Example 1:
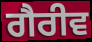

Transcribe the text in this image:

ਗੈਰੀਵ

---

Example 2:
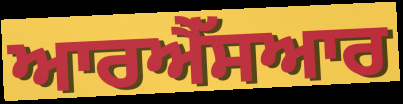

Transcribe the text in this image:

ਆਰਐੱਸਆਰ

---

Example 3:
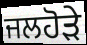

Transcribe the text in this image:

ਜਲਹੋੜੇ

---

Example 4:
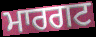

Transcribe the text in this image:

ਮਾਰਗਟ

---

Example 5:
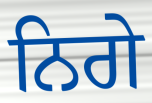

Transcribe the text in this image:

ਨਿਗੇ